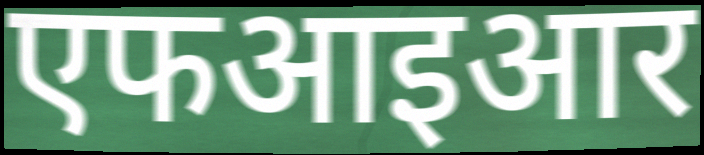
एफआइआर